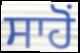
ਸਾਹੋਂ